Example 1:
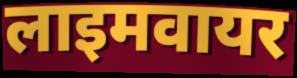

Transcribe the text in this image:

लाइमवायर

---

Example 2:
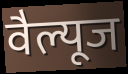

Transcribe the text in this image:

वैल्यूज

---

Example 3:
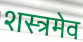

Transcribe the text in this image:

शस्त्रमेव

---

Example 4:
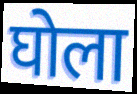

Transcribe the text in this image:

घोला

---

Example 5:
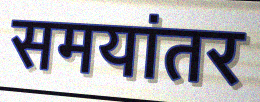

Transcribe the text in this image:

समयांतर